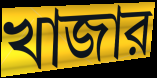
খাজার